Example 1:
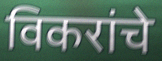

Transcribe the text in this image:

विकरांचे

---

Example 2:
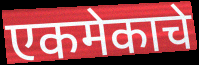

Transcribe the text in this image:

एकमेकाचे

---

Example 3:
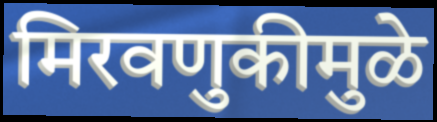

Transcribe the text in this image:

मिरवणुकीमुळे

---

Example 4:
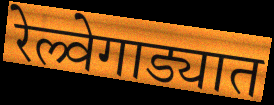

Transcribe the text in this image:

रेल्वेगाड्यात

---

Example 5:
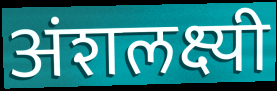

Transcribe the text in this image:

अंशलक्ष्यी